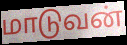
மாடுவன்